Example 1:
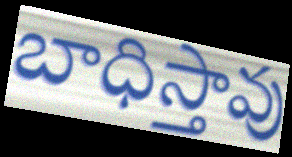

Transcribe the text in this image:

బాధిస్తావు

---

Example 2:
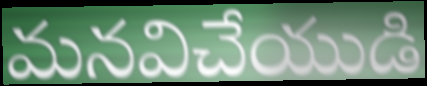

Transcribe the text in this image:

మనవిచేయుడి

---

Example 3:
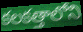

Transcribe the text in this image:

కలకత్తాలోని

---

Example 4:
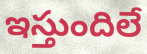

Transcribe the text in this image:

ఇస్తుందిలే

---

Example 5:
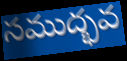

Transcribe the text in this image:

సముద్భవ